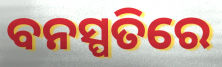
ବନସ୍ପତିରେ